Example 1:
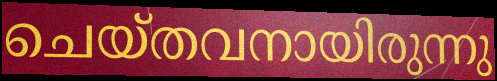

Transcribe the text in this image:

ചെയ്തവനായിരുന്നു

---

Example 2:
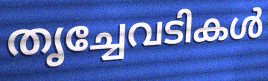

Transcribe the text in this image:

തൃച്ചേവടികൾ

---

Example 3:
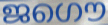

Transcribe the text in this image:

ജഗൌ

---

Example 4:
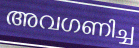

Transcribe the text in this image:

അവഗണിച്ച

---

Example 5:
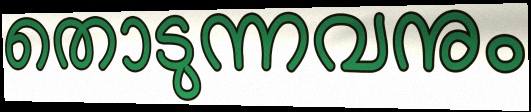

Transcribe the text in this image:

തൊടുന്നവനും